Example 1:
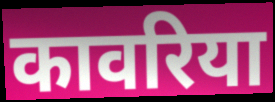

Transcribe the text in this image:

कावरिया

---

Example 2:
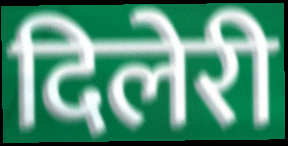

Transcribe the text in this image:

दिलेरी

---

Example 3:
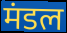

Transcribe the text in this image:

मंडल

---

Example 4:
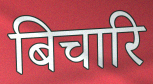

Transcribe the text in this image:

बिचारि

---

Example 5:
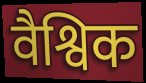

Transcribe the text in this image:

वैश्विक